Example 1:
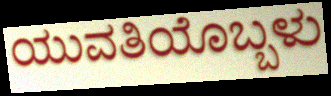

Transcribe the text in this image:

ಯುವತಿಯೊಬ್ಬಳು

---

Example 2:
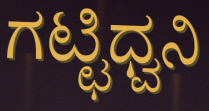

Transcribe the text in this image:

ಗಟ್ಟಿಧ್ವನಿ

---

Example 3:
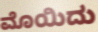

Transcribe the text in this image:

ಮೊಯಿದು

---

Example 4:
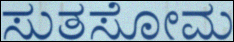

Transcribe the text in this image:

ಸುತಸೋಮ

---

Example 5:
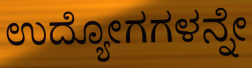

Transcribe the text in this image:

ಉದ್ಯೋಗಗಳನ್ನೇ